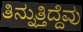
ತಿನ್ನುತ್ತಿದ್ದೆವು